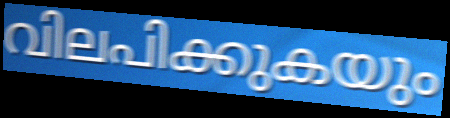
വിലപിക്കുകയും